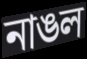
নাঙল